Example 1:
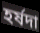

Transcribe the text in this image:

হর্ষদা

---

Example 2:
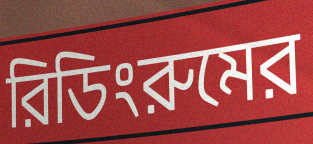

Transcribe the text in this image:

রিডিংরুমের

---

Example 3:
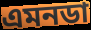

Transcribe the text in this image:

এমনডা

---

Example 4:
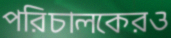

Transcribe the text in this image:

পরিচালকেরও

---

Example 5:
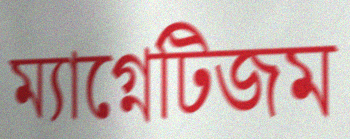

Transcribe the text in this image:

ম্যাগ্নেটিজম